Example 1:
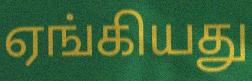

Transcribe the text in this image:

ஏங்கியது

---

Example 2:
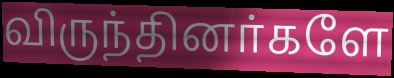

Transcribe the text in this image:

விருந்தினர்களே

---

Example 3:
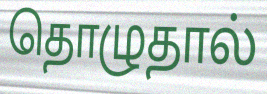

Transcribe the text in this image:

தொழுதால்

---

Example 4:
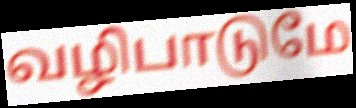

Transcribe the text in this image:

வழிபாடுமே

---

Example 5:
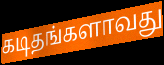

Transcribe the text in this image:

கடிதங்களாவது